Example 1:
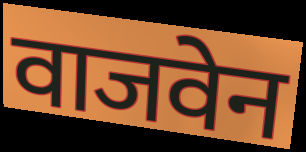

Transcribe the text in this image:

वाजवेन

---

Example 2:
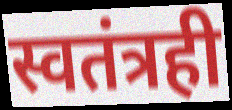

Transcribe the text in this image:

स्वतंत्रही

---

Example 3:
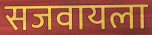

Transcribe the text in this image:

सजवायला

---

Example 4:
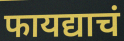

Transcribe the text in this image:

फायद्याचं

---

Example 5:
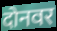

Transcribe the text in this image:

दोनवर